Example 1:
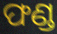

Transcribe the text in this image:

ଫଣ୍ଡ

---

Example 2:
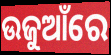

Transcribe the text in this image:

ଉଜୁଆଁରେ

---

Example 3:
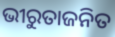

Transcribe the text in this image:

ଭୀରୁତାଜନିତ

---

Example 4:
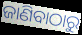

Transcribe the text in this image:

ଜାଣିବାଠାରୁ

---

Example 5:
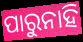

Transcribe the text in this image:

ପାରୁନାହି